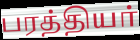
பரத்தியர்